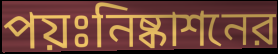
পয়ঃনিষ্কাশনের